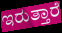
ಇರುತ್ತಾರೆ